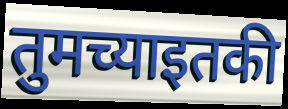
तुमच्याइतकी